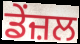
ਡੇਂਜ਼ਲ